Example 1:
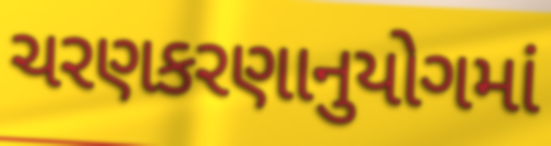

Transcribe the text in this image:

ચરણકરણાનુયોગમાં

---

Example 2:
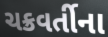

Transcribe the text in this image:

ચક્રવર્તીના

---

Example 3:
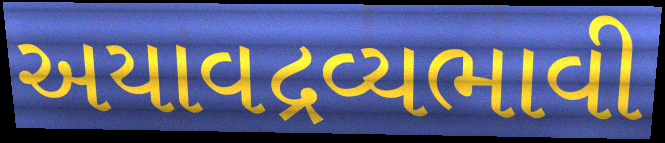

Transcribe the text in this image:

અયાવદ્રવ્યભાવી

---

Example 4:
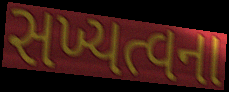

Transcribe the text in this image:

સખ્યત્વના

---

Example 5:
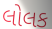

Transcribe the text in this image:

લોલક